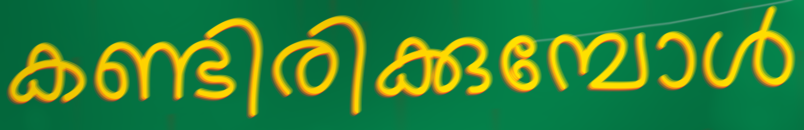
കണ്ടിരിക്കുമ്പോൾ